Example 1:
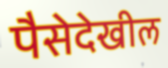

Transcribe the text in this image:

पैसेदेखील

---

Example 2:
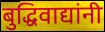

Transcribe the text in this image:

बुद्धिवाद्यांनी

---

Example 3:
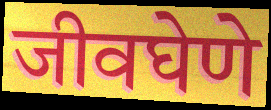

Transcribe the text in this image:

जीवघेणे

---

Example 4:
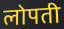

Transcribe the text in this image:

लोपती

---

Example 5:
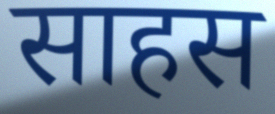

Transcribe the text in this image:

साहस